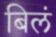
बिलं